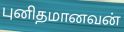
புனிதமானவன்